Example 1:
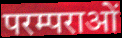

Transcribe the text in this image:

परम्पराओं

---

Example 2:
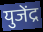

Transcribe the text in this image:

युजेंद्र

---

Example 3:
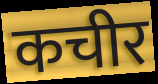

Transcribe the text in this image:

कचीर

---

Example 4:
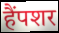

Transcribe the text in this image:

हैंपशर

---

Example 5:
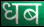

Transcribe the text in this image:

धब